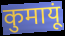
कुमायूं